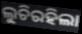
ଲୁଚିରହିଲା